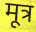
मूत्र